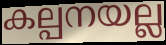
കല്പനയല്ല